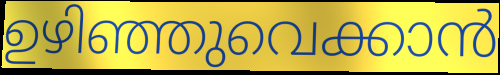
ഉഴിഞ്ഞുവെക്കാൻ